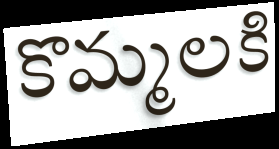
కొమ్మలకి